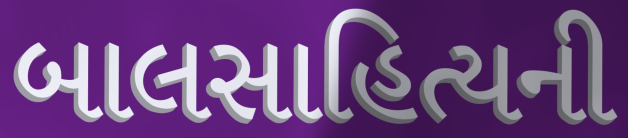
બાલસાહિત્યની